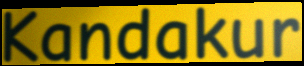
Kandakur